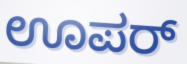
ಊಪರ್